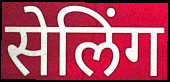
सेलिंग